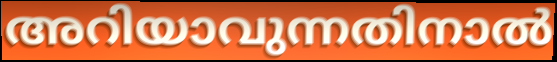
അറിയാവുന്നതിനാൽ